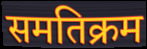
समतिक्रम